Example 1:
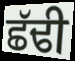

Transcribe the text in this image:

ਛੱਢੀ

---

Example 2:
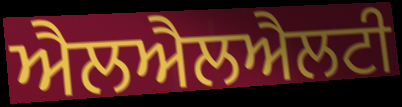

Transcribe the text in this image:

ਐਲਐਲਐਲਟੀ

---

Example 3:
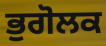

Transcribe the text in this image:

ਭੁਗੋਲਕ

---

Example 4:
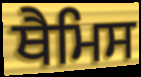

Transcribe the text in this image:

ਥੈਮਿਸ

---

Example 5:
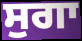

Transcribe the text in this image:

ਸੁਗਾ